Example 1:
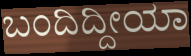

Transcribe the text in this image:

ಬಂದಿದ್ದೀಯಾ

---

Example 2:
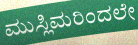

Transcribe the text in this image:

ಮುಸ್ಲಿಮರಿಂದಲೇ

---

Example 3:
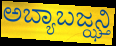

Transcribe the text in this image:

ಅಬ್ಯಾಬಜ್ಝನ್ತಿ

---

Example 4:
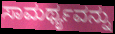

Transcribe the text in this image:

ಸಾಮರ್ಥ್ಯವನ್ನು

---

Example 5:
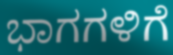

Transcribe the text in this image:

ಭಾಗಗಳಿಗೆ